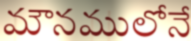
మౌనములోనే